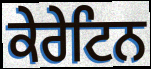
ਕੇਰੇਟਿਨ